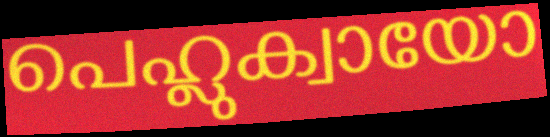
പെഹ്ലുക്വായോ